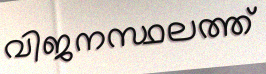
വിജനസ്ഥലത്ത്